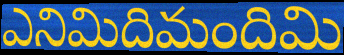
ఎనిమిదిమందిమి